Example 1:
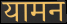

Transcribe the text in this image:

यामन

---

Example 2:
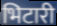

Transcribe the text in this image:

भिटारी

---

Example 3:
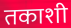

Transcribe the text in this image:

तकाशी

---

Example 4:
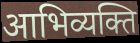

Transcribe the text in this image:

आभिव्यक्ति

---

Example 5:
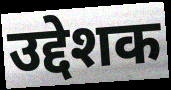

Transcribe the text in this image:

उद्देशक